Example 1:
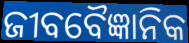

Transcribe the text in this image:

ଜୀବବୈଜ୍ଞାନିକ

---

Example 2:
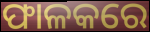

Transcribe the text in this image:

ଫାଳକରେ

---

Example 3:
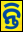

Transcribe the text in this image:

ନ୍ତି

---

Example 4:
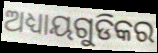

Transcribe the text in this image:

ଅଧ୍ୟାୟଗୁଡିକର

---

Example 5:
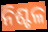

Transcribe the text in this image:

ନିଶ୍ଚଳ